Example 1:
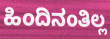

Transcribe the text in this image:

ಹಿಂದಿನಂತಿಲ್ಲ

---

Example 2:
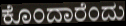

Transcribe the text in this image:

ಕೊಂದಾರೆಂದು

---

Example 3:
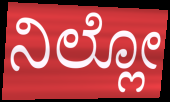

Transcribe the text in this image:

ನಿಲ್ಲೋ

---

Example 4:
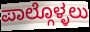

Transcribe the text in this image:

ಪಾಲ್ಗೊಳ್ಳಲು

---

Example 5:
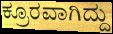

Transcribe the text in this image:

ಕ್ರೂರವಾಗಿದ್ದು